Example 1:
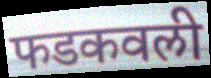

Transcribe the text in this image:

फडकवली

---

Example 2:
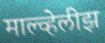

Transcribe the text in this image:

माल्व्हेलीझ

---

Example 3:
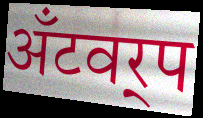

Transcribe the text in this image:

अँटवर्प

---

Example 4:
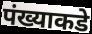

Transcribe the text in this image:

पंख्याकडे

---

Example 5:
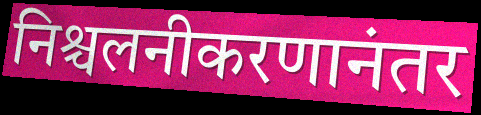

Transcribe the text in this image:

निश्चलनीकरणानंतर